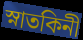
স্নাতকিনী